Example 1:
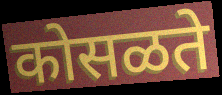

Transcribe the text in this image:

कोसळते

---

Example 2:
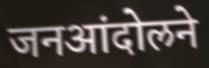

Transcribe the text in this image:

जनआंदोलने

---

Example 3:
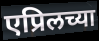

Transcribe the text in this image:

एप्रिलच्या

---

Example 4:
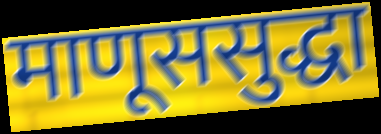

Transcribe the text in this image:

माणूससुद्धा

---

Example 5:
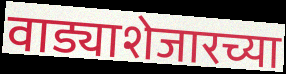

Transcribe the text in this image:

वाड्याशेजारच्या